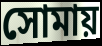
সোমায়